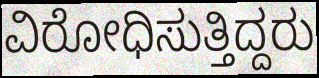
ವಿರೋಧಿಸುತ್ತಿದ್ದರು